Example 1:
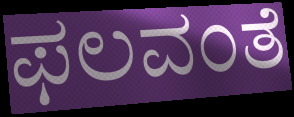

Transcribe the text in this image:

ಫಲವಂತೆ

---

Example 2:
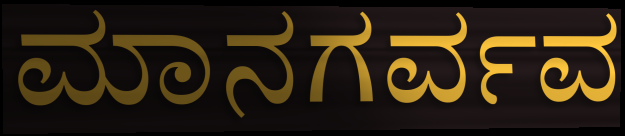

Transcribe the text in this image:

ಮಾನಗರ್ವವ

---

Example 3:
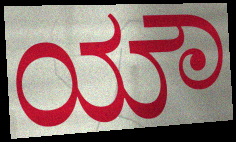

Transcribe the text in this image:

ಯೌ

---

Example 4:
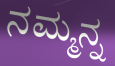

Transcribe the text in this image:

ನಮ್ಮನ್ನ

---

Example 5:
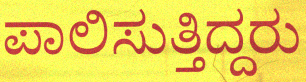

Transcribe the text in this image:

ಪಾಲಿಸುತ್ತಿದ್ದರು